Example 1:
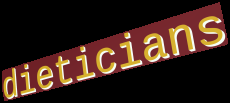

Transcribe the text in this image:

dieticians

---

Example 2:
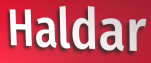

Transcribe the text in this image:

Haldar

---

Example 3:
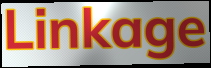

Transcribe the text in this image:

Linkage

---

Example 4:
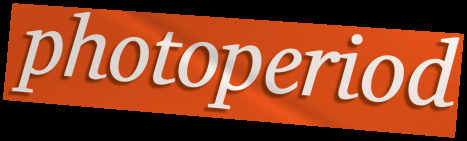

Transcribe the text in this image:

photoperiod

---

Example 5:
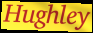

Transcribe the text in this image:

Hughley